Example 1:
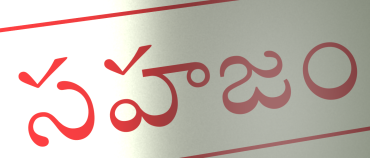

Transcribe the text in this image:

సహజం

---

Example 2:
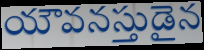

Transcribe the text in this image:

యౌవనస్తుడైన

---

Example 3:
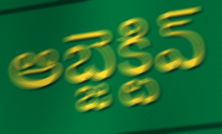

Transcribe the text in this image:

ఆబ్జెక్టివ్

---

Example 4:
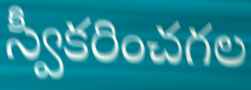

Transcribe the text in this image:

స్వీకరించగల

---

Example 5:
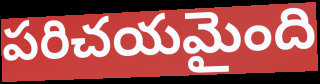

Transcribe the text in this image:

పరిచయమైంది